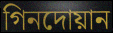
গিনদোয়ান